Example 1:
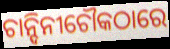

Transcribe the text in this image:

ଚାନ୍ଦିନୀଚୌକଠାରେ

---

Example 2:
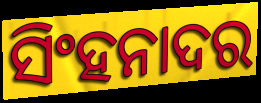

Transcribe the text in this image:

ସିଂହନାଦର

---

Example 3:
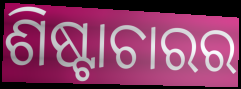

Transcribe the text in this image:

ଶିଷ୍ଟାଚାରର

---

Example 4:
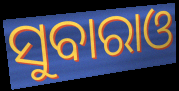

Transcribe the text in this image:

ସୁବାରାଓ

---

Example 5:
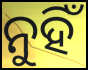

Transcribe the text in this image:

ନୁହିଁ